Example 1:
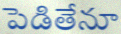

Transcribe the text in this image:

పెడితేనూ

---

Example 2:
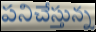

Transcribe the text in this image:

పనిచేస్తున్న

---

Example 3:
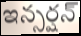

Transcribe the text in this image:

ఇన్సర్షన్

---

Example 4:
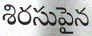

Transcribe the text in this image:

శిరసుపైన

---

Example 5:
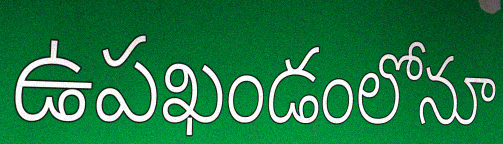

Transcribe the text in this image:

ఉపఖండంలోనూ